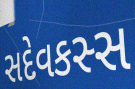
સદેવકસ્સ